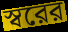
স্বরের